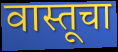
वास्तूचा